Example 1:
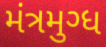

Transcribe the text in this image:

મંત્રમુગ્ધ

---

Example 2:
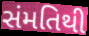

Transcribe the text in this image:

સંમતિથી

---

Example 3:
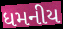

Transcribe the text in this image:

ધમનીય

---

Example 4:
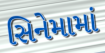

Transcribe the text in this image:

સિનેમામાં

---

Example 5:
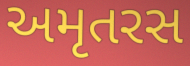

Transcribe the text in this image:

અમૃતરસ